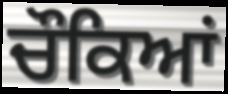
ਚੌਕਿਆਂ